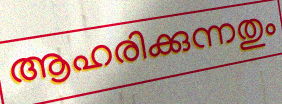
ആഹരിക്കുന്നതും